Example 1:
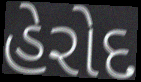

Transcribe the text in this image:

હેરોદ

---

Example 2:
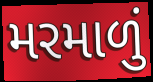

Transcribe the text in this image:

મરમાળું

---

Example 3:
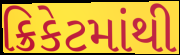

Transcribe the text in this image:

ક્રિકેટમાંથી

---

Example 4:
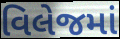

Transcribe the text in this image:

વિલેજમાં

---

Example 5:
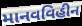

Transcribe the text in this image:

માનવવિહીન